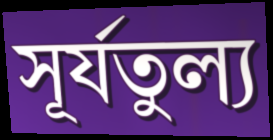
সূর্যতুল্য